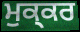
ਮੁਕ੍ਕਰ